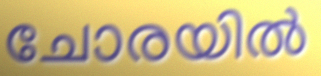
ചോരയിൽ